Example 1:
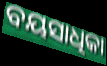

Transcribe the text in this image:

ବୟସାଧିକା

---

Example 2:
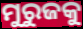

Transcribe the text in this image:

ମୁରୁଜକୁ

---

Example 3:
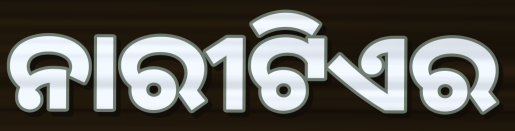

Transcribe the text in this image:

ନାରୀଟିଏର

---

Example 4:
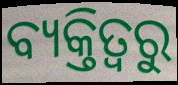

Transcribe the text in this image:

ବ୍ୟକ୍ତିତ୍ଵରୁ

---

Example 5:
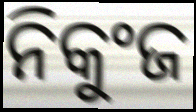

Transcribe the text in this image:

ନିକୁଂଜ